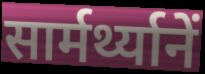
सार्मर्थ्यानें